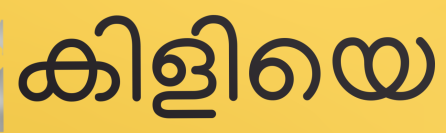
കിളിയെ